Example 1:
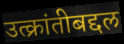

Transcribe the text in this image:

उत्क्रांतीबद्दल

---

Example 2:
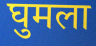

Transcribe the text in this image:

घुमला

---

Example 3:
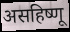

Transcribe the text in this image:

असहिष्णू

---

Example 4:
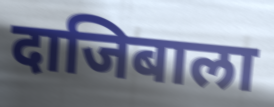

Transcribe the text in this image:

दाजिबाला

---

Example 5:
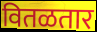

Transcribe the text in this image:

वितळतार